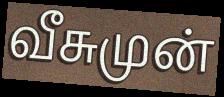
வீசுமுன்